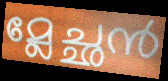
മ്ലേച്ഛൻ